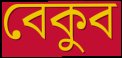
বেকুব